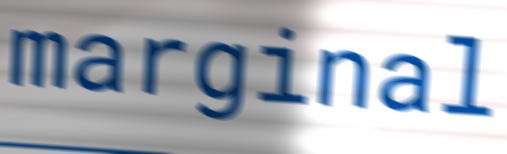
marginal